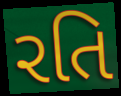
રતિ